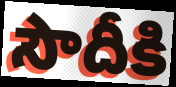
సౌదీకి